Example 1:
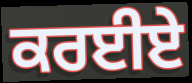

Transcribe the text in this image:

ਕਰਈਏ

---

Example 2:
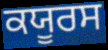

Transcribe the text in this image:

ਕਯੂਰਸ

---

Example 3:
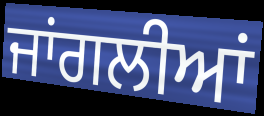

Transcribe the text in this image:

ਜਾਂਗਲੀਆਂ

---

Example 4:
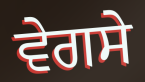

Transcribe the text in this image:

ਵੇਗਸੇ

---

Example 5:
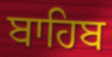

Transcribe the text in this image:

ਬਾਹਿਬ